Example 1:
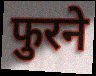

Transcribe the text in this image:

फुरने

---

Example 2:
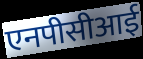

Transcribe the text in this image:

एनपीसीआई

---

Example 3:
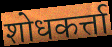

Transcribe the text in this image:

शोधकर्त्ता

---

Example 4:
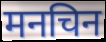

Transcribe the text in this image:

मनचिन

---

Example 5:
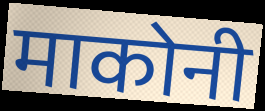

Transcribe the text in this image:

माकोनी